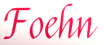
Foehn